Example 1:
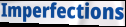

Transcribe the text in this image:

Imperfections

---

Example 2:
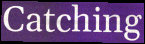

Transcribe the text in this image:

Catching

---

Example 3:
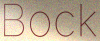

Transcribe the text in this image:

Bock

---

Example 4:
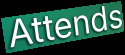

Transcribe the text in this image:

Attends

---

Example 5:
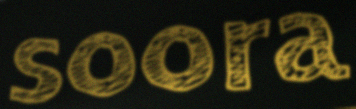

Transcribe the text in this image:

soora